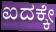
ಐದಕ್ಕೇ